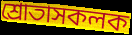
শ্ৰোতাসকলক